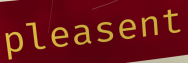
pleasent